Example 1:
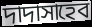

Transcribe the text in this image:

দাদাসাহেব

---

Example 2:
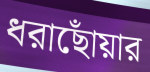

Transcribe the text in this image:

ধরাছোঁয়ার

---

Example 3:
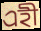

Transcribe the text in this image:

এহী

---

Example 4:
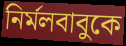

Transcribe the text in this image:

নির্মলবাবুকে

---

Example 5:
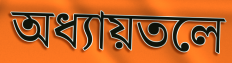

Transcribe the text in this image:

অধ্যায়তলে